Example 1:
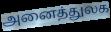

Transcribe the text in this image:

அனைத்துலக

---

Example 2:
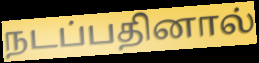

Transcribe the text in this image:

நடப்பதினால்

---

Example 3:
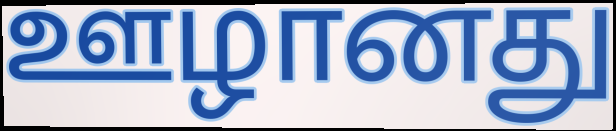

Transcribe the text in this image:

ஊழானது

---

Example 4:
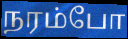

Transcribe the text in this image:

நரம்போ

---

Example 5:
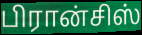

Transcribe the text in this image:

பிரான்சிஸ்